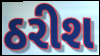
ઠરીશ